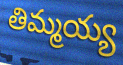
తిమ్మయ్య